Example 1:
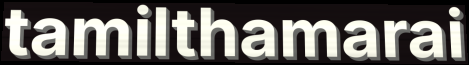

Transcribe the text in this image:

tamilthamarai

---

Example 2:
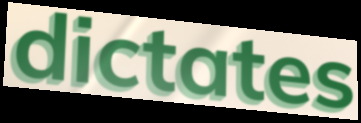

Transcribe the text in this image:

dictates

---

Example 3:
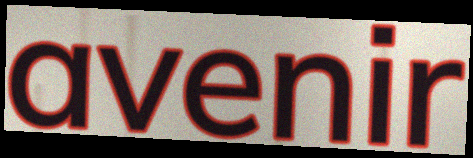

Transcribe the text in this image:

avenir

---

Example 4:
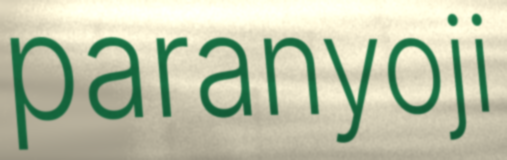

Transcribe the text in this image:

paranyoji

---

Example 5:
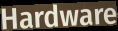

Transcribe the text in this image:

Hardware